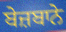
ਬੇਜ਼ਬਾਨੇ